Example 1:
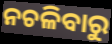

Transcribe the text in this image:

ନଚଳିବାରୁ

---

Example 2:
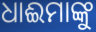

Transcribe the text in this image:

ଧାଈମାଙ୍କୁ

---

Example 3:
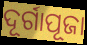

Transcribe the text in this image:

ଦୂର୍ଗାପୂଜା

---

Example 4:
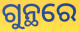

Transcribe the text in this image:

ଗୁନ୍ଥରେ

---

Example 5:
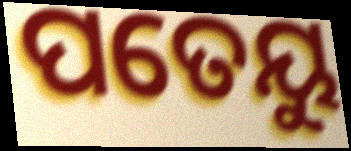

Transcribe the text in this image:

ପତେୟୁ